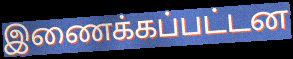
இணைக்கப்பட்டன